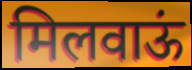
मिलवाऊं